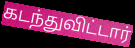
கடந்துவிட்டார்